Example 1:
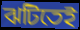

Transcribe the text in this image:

ঝটিতেই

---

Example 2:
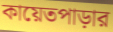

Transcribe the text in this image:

কায়েতপাড়ার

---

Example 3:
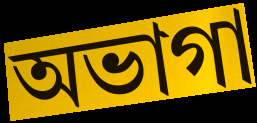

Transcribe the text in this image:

অভাগা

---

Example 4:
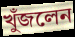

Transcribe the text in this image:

খুঁজলেন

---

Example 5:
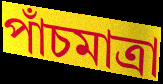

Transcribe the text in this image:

পাঁচমাত্রা